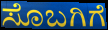
ಸೊಬಗಿಗೆ